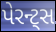
પેરન્ટ્સ